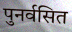
पुनर्वसित